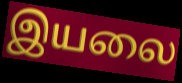
இயலை